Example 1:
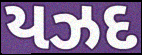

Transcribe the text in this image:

યઝદ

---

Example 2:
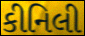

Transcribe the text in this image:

કીનિલી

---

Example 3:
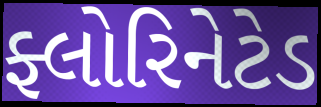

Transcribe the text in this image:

ફ્લોરિનેટેડ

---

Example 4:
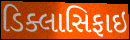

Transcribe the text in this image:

ડિક્લાસિફાઇ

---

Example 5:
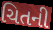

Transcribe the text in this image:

ચિતની